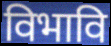
विभावि